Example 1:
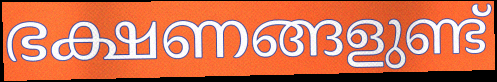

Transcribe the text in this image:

ഭക്ഷണങ്ങളുണ്ട്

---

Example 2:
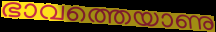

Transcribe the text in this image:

ഭാവത്തെയാണു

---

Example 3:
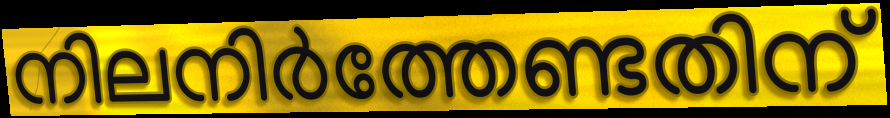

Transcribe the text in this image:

നിലനിർത്തേണ്ടതിന്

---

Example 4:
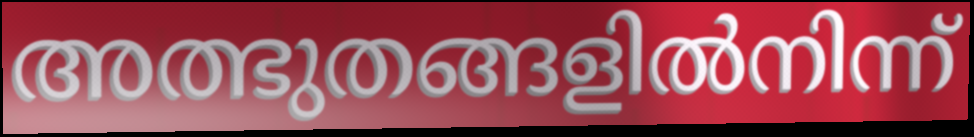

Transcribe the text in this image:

അത്ഭുതങ്ങളിൽനിന്ന്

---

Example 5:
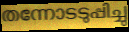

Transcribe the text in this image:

തന്നോടടുപ്പിച്ചു